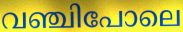
വഞ്ചിപോലെ